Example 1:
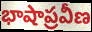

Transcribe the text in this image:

భాషాప్రవీణ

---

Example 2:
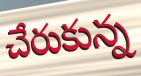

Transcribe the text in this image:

చేరుకున్న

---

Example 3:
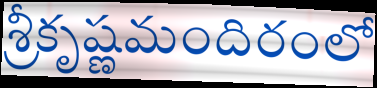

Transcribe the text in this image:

శ్రీకృష్ణమందిరంలో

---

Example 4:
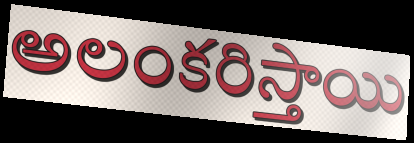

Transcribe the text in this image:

అలంకరిస్తాయి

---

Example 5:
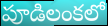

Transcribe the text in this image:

పూడిలంకలో